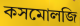
কসমোলজি